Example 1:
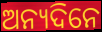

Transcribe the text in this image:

ଅନ୍ୟଦିନେ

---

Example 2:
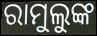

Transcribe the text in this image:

ରାମୁଲୁଙ୍କ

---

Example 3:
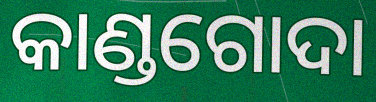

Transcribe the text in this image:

କାଣ୍ଡଗୋଦା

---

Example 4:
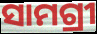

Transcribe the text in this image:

ସାମଗ୍ରୀ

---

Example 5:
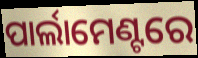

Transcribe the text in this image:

ପାର୍ଲାମେଣ୍ଟରେ